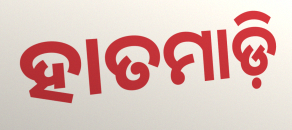
ହାତମାଡ଼ି